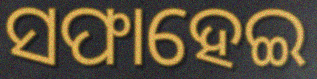
ସଫାହେଇ